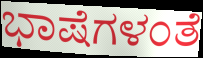
ಭಾಷೆಗಳಂತೆ